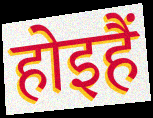
होइहैं